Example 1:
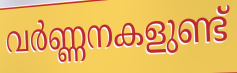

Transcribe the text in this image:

വർണ്ണനകളുണ്ട്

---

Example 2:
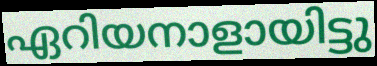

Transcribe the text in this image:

ഏറിയനാളായിട്ടു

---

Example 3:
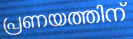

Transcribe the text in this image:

പ്രണയത്തിന്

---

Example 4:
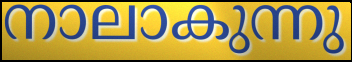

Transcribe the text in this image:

നാലാകുന്നു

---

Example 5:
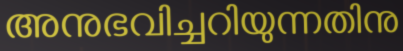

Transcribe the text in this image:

അനുഭവിച്ചറിയുന്നതിനു